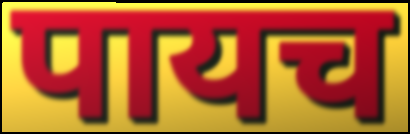
पायच